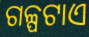
ଗଳ୍ପଟାଏ